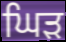
ਘਿੜ